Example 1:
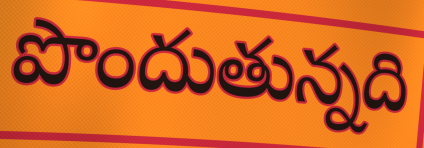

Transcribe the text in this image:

పొందుతున్నది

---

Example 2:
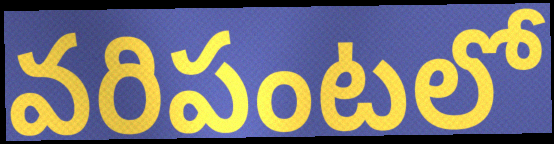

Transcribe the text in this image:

వరిపంటలో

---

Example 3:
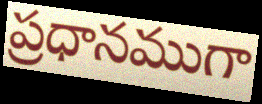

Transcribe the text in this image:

ప్రధానముగా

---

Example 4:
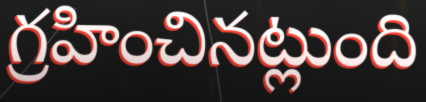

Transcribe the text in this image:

గ్రహించినట్లుంది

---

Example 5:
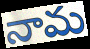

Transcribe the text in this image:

నామ